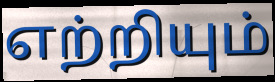
எற்றியும்